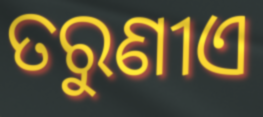
ତରୁଣୀଏ